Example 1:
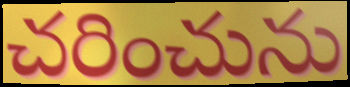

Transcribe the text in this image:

చరించును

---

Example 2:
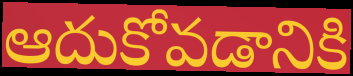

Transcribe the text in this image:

ఆదుకోవడానికి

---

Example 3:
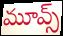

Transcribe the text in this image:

మూవ్స్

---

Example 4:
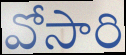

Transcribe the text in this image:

వోసారి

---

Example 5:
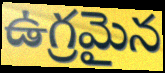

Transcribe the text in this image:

ఉగ్రమైన